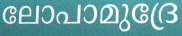
ലോപാമുദ്രേ